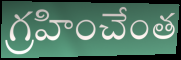
గ్రహించేంత